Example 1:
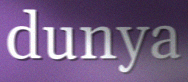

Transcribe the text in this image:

dunya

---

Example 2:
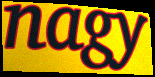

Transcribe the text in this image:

nagy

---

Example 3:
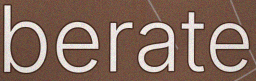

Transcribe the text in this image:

berate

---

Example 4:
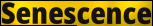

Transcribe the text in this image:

Senescence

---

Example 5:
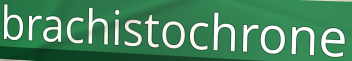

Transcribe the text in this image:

brachistochrone